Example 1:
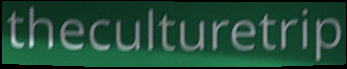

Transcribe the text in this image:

theculturetrip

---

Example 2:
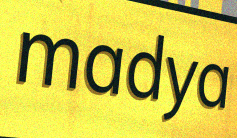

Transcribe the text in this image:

madya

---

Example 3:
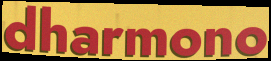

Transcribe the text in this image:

dharmono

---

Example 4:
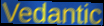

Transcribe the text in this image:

Vedantic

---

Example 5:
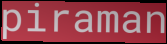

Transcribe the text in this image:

piraman